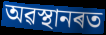
অৱস্থানৰত